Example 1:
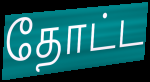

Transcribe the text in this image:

தோட்ட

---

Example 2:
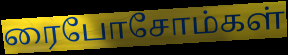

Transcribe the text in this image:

ரைபோசோம்கள்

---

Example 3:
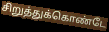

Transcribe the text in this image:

சிறுத்துக்கொண்டே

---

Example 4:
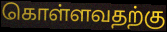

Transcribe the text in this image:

கொள்ளவதற்கு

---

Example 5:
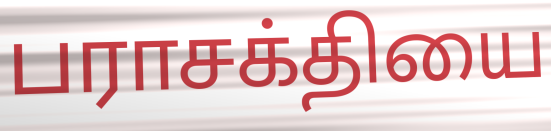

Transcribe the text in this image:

பராசக்தியை